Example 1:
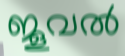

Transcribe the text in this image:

ജൂവൽ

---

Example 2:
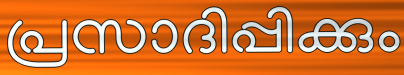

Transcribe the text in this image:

പ്രസാദിപ്പിക്കും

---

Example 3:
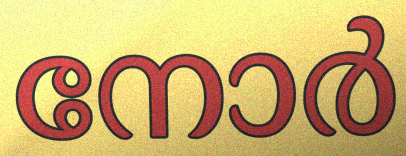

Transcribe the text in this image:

നോർ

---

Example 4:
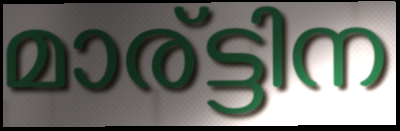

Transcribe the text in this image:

മാര്ട്ടിന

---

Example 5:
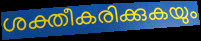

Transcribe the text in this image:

ശക്തീകരിക്കുകയും